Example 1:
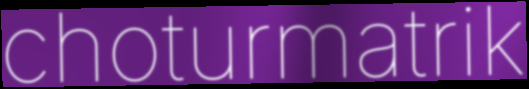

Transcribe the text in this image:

choturmatrik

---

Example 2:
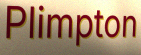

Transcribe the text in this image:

Plimpton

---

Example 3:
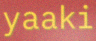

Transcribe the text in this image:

yaaki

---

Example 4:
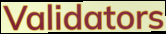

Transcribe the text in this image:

Validators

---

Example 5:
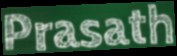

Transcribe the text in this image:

Prasath